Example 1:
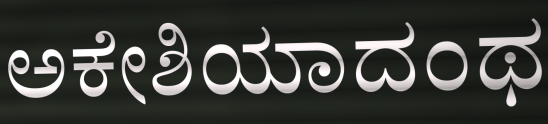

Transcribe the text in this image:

ಅಕೇಶಿಯಾದಂಥ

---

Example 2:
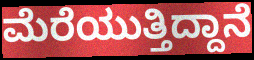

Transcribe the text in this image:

ಮೆರೆಯುತ್ತಿದ್ದಾನೆ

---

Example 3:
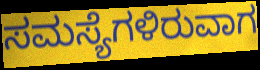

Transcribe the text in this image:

ಸಮಸ್ಯೆಗಳಿರುವಾಗ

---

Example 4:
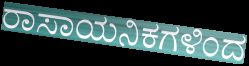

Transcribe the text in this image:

ರಾಸಾಯನಿಕಗಳಿಂದ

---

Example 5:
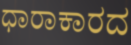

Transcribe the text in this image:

ಧಾರಾಕಾರದ